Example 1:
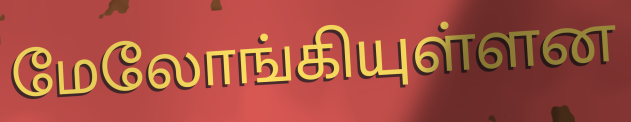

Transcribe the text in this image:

மேலோங்கியுள்ளன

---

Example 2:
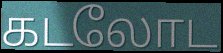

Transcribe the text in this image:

கடலோட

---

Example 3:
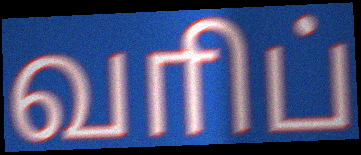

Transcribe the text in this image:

வரிப்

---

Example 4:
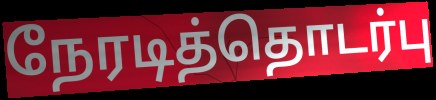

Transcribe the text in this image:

நேரடித்தொடர்பு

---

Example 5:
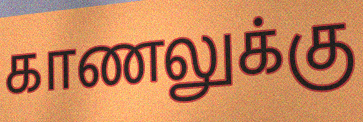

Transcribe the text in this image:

காணலுக்கு